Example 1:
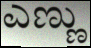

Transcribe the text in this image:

ಎಣ್ಣು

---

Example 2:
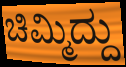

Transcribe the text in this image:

ಚಿಮ್ಮಿದ್ದು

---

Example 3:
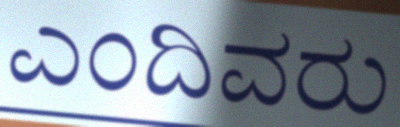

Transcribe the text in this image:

ಎಂದಿವರು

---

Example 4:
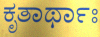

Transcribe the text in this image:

ಕೃತಾರ್ಥಾಃ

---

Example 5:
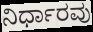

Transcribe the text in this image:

ನಿರ್ಧಾರವು